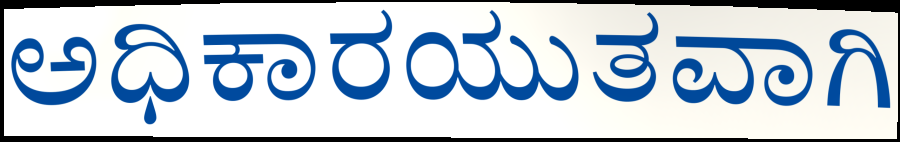
ಅಧಿಕಾರಯುತವಾಗಿ